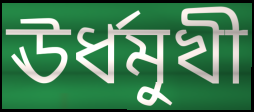
ঊর্ধমুখী